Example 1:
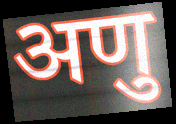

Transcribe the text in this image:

अणु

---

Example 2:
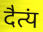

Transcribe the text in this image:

दैत्यं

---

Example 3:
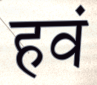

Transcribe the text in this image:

हवं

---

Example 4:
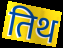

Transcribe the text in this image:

तिथ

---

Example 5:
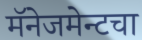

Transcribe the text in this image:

मॅनेजमेन्टचा